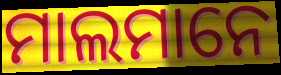
ମାଲମାନେ